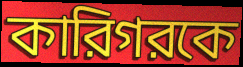
কারিগরকে